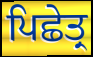
ਪਿਛੇਤ੍ਰ